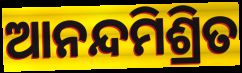
ଆନନ୍ଦମିଶ୍ରିତ